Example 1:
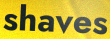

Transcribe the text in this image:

shaves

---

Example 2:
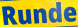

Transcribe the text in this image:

Runde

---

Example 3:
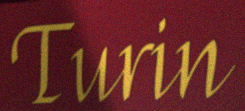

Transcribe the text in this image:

Turin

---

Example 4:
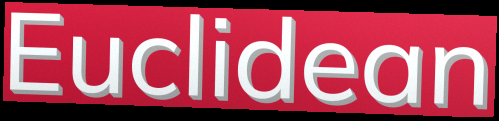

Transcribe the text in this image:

Euclidean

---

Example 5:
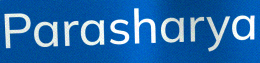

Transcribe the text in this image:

Parasharya